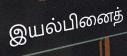
இயல்பினைத்